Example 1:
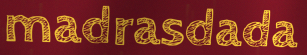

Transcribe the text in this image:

madrasdada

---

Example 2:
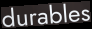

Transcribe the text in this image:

durables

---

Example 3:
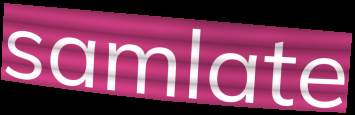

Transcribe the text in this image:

samlate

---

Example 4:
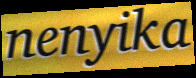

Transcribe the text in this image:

nenyika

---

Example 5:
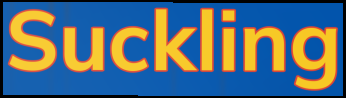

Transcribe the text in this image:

Suckling